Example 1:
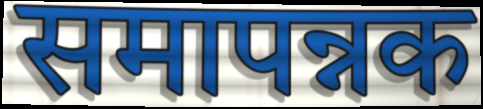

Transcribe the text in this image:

समापन्नक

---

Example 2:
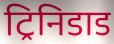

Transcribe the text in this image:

ट्रिनिडाड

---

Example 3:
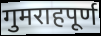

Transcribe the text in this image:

गुमराहपूर्ण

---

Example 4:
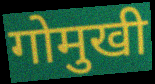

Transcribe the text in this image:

गोमुखी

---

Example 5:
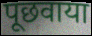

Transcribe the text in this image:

पूछवाया